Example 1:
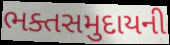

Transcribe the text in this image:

ભક્તસમુદાયની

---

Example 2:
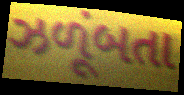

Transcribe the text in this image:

ઝળૂંબતા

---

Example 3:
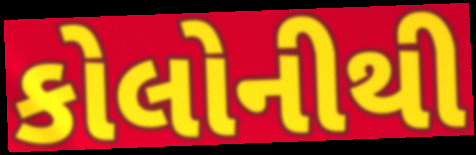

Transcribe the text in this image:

કોલોનીથી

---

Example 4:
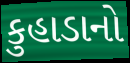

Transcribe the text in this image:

કુહાડાનો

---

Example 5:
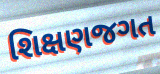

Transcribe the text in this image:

શિક્ષણજગત